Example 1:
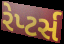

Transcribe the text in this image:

રેપ્ટર્સ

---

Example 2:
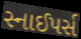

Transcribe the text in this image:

સ્નાઈપર્સ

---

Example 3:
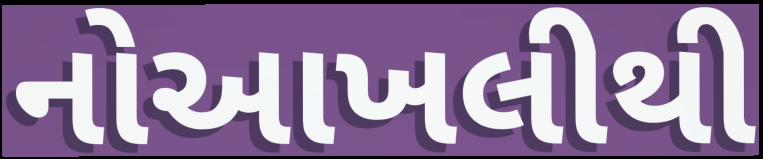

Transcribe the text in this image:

નોઆખલીથી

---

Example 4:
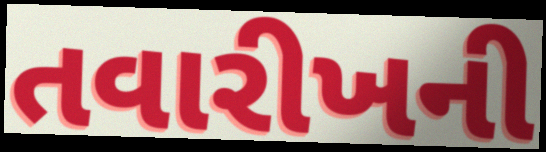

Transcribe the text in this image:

તવારીખની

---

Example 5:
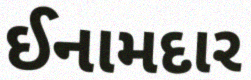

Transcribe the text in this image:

ઈનામદાર